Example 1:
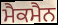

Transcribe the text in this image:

ਮੈਕਮੈਨ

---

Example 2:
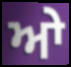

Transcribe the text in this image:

ਆੇ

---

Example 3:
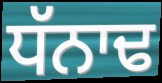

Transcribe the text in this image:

ਧੱਨਾਢ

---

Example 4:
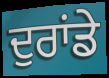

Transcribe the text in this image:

ਦੁਰਾਂਡੇ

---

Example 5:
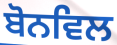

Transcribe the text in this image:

ਬੋਨਵਿਲ